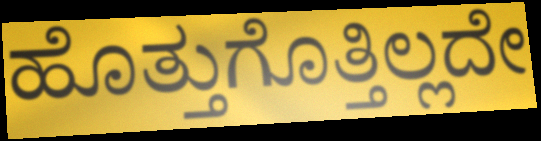
ಹೊತ್ತುಗೊತ್ತಿಲ್ಲದೇ